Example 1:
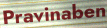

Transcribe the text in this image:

Pravinaben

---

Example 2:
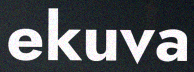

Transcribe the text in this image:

ekuva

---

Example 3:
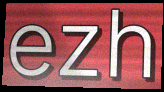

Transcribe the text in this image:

ezh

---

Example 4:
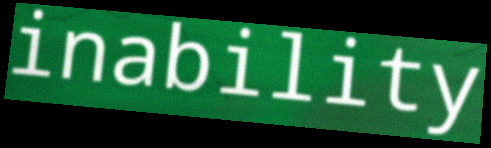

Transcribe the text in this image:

inability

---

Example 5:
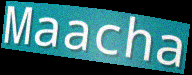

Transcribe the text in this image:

Maacha